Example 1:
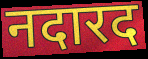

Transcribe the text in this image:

नदारद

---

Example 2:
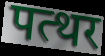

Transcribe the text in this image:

पत्थर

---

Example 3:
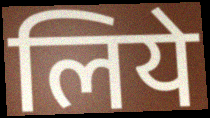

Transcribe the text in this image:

लिये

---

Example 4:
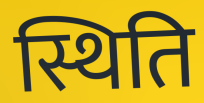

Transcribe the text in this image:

स्थिति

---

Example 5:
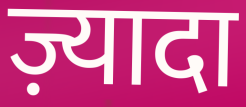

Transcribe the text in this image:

ज़्यादा